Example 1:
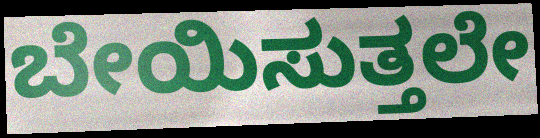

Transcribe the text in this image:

ಬೇಯಿಸುತ್ತಲೇ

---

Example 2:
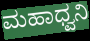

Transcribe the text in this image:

ಮಹಾಧ್ವನಿ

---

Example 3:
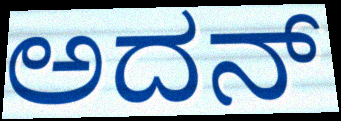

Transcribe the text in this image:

ಅದನ್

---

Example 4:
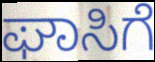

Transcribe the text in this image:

ಘಾಸಿಗೆ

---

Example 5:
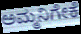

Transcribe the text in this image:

ಅಮ್ಮನಿಗೇಕೆ